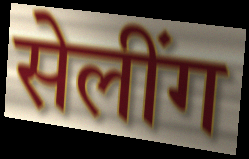
सेलींग